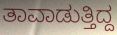
ತಾವಾಡುತ್ತಿದ್ದ